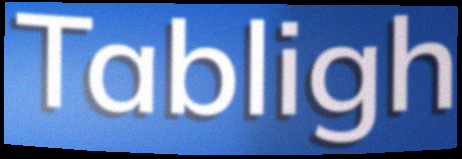
Tabligh